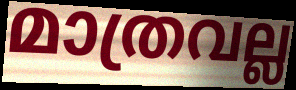
മാത്രവല്ല